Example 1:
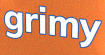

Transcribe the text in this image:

grimy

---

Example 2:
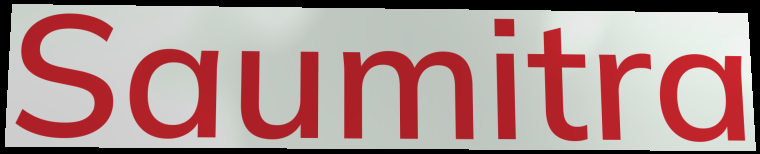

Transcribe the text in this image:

Saumitra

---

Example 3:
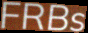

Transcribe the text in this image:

FRBs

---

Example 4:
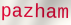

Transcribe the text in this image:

pazham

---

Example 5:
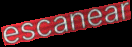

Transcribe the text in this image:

escanear